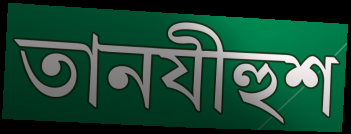
তানযীহুশ